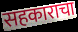
सहकाराचा